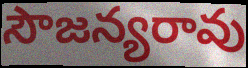
సౌజన్యరావు